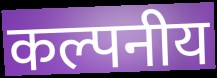
कल्पनीय